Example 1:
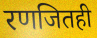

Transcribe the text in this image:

रणजितही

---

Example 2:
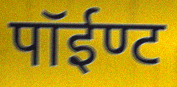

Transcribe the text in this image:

पॉईण्ट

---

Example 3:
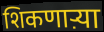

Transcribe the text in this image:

शिकणाऱ्‍या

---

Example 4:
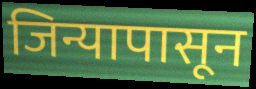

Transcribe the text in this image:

जिन्यापासून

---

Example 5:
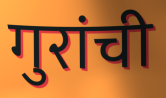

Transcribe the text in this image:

गुरांची